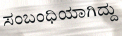
ಸಂಬಂಧಿಯಾಗಿದ್ದು